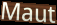
Maut